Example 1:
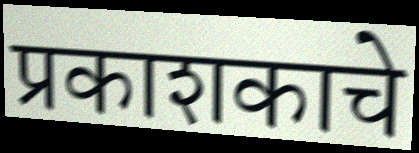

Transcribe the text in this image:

प्रकाशकाचे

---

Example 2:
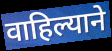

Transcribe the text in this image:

वाहिल्याने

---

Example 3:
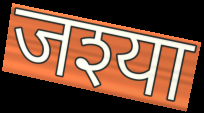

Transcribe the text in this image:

जश्या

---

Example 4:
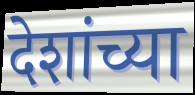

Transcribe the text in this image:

देशांच्या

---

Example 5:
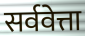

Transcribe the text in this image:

सर्ववेत्ता